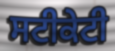
ਸਟੀਕੇਟੀ